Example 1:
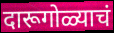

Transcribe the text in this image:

दारूगोळ्याचं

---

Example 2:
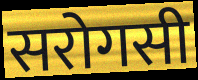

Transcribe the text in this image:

सरोगसी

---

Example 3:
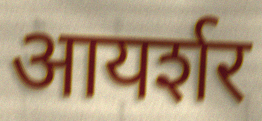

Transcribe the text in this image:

आयर्शर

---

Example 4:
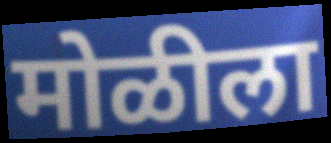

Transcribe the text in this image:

मोळीला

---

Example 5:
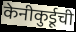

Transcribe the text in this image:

केनीकुर्डूची